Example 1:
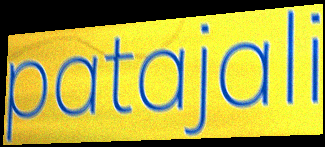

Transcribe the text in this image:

patajali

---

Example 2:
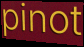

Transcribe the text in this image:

pinot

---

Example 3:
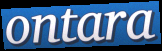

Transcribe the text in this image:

ontara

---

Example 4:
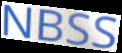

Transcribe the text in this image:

NBSS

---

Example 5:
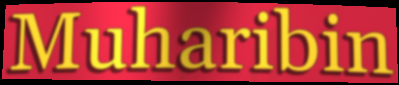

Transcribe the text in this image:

Muharibin